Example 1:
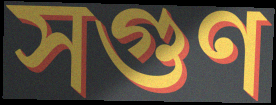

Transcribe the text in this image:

সগুণ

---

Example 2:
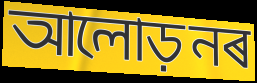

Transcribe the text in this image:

আলোড়নৰ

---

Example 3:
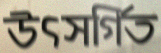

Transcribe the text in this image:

উৎসৰ্গিত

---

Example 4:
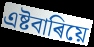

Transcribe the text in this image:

এষ্টবাৰিয়ে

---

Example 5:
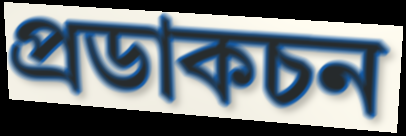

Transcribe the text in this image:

প্ৰডাকচন